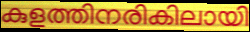
കുളത്തിനരികിലായി